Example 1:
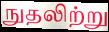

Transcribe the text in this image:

நுதலிற்று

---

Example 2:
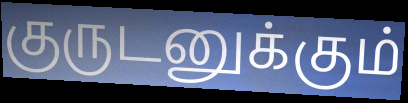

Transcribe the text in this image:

குருடனுக்கும்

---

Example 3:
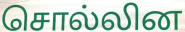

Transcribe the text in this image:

சொல்லின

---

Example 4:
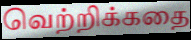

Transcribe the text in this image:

வெற்றிக்கதை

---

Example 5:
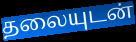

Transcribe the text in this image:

தலையுடன்